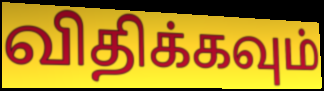
விதிக்கவும்